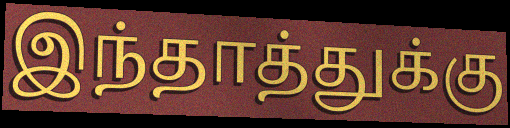
இந்தாத்துக்கு